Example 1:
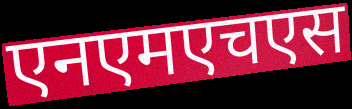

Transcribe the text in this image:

एनएमएचएस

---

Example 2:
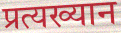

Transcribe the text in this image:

प्रत्यख्यान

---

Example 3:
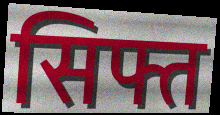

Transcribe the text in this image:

सिफ्त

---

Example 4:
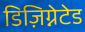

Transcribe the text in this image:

डिज़िग्नेटेड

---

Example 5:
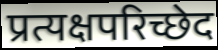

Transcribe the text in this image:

प्रत्यक्षपरिच्छेद